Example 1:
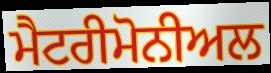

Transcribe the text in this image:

ਮੈਟਰੀਮੋਨੀਅਲ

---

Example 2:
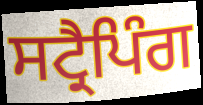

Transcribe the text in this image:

ਸਟ੍ਰੈਪਿੰਗ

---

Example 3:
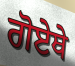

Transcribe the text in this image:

ਗੋਏਥੇ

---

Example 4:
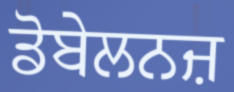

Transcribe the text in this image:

ਡੋਬੇਲਨਜ਼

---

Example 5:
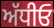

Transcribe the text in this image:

ਅੱਧੀਓ